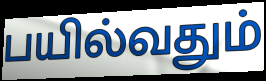
பயில்வதும்